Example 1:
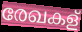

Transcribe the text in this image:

രേഖകള്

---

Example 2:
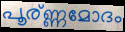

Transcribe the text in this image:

പൂര്ണ്ണമോദം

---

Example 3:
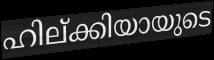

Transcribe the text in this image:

ഹില്ക്കിയായുടെ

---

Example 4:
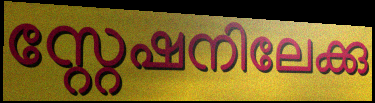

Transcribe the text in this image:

സ്റ്റേഷനിലേക്കു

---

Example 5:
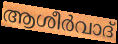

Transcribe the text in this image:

ആശീർവാദ്